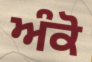
ਅੰਕੋ